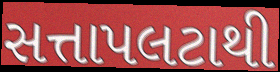
સત્તાપલટાથી